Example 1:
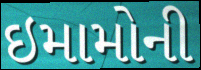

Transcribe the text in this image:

ઇમામોની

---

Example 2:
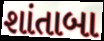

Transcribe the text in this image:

શાંતાબા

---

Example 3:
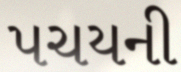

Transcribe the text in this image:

પચયની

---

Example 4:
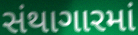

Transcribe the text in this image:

સંથાગારમાં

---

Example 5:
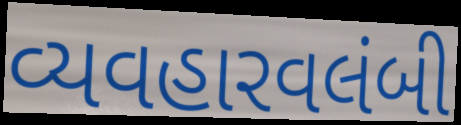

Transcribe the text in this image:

વ્યવહારવલંબી